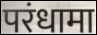
परंधामा